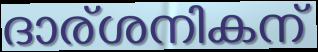
ദാര്ശനികന്